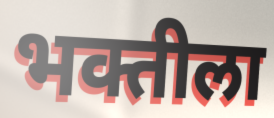
भक्तीला